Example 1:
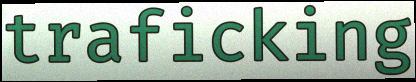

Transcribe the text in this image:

traficking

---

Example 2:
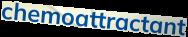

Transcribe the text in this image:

chemoattractant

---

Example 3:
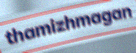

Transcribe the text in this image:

thamizhmagan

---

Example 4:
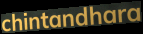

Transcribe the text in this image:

chintandhara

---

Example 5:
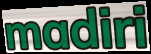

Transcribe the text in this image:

madiri